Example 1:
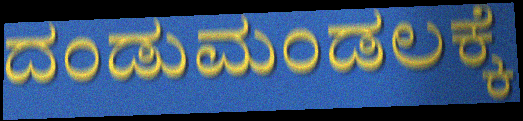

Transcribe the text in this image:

ದಂಡುಮಂಡಲಕ್ಕೆ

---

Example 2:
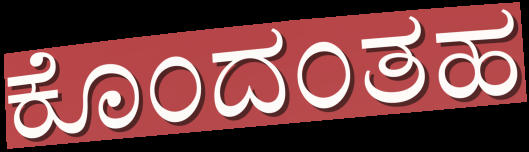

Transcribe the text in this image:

ಕೊಂದಂತಹ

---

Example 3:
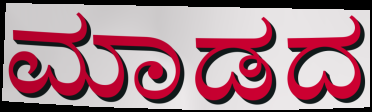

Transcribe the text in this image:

ಮಾಡದ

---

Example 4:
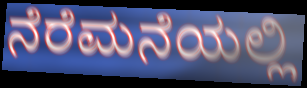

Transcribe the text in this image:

ನೆರೆಮನೆಯಲ್ಲಿ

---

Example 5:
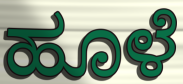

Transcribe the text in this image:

ಹೂಳೆ